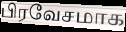
பிரவேசமாக